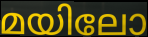
മയിലോ